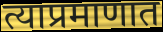
त्याप्रमाणात